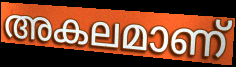
അകലമാണ്